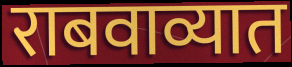
राबवाव्यात